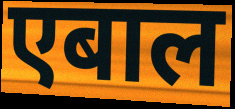
एबाल